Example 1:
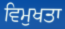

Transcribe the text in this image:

ਵਿਮੁਖਤਾ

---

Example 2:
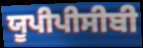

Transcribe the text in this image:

ਯੂਪੀਪੀਸੀਬੀ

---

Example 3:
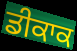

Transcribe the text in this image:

ਡੀਕਾਕ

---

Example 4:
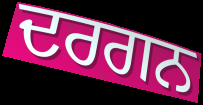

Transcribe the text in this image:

ਦਰਗਨ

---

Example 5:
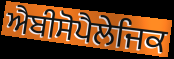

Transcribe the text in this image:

ਐਬੀਸੋਪੈਲੇਜਿਕ